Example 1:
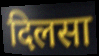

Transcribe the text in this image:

दिलसा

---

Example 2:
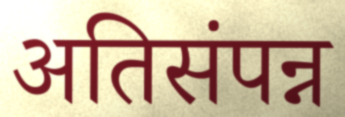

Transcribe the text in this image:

अतिसंपन्न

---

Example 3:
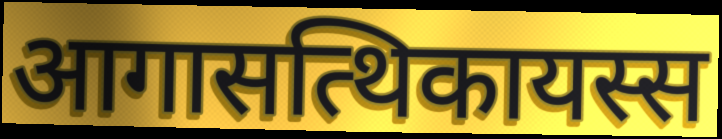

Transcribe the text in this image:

आगासत्थिकायस्स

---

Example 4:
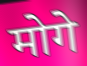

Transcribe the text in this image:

मोगे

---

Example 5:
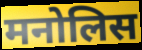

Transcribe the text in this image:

मनोलिस